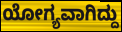
ಯೋಗ್ಯವಾಗಿದ್ದು